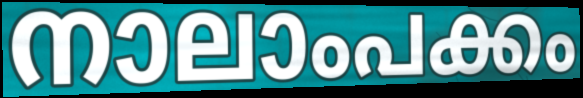
നാലാംപക്കം